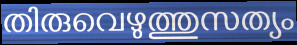
തിരുവെഴുത്തുസത്യം